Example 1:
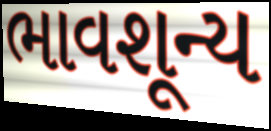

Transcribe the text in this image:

ભાવશૂન્ય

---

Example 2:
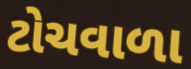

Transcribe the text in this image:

ટોચવાળા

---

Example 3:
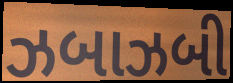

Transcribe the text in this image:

ઝબાઝબી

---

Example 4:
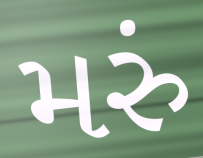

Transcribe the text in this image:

મરું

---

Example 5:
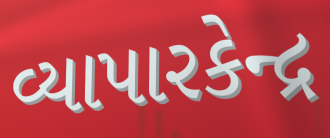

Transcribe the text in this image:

વ્યાપારકેન્દ્ર